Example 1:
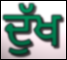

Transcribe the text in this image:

ਦੁੱਖ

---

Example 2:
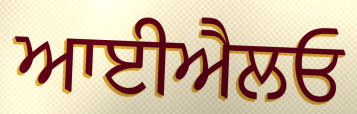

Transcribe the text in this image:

ਆਈਐਲਓ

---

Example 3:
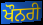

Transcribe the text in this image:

ਖੌਨਰੀ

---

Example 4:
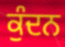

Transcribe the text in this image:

ਕੁੰਦਨ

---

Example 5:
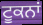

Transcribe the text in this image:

ਟੂਕਨਾਂ